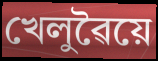
খেলুৱৈয়ে